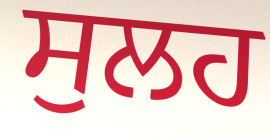
ਸੁਲਹ